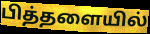
பித்தளையில்